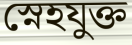
স্নেহযুক্ত